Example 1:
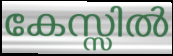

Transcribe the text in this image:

കേസ്സിൽ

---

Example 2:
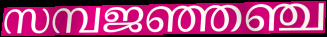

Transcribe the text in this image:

സമ്പജഞ്ഞഞ്ച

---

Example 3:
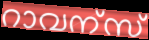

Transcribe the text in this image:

റാവന്സ്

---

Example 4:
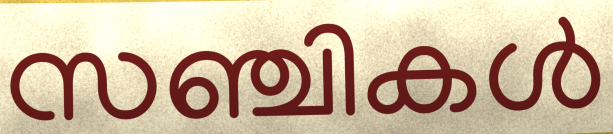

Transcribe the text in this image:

സഞ്ചികൾ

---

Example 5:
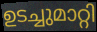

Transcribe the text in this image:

ഉടച്ചുമാറ്റി